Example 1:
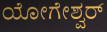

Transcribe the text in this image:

ಯೋಗೇಶ್ವರ್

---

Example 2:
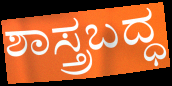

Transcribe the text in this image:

ಶಾಸ್ತ್ರಬದ್ಧ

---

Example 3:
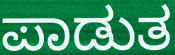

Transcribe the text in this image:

ಪಾಡುತ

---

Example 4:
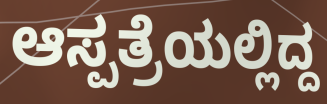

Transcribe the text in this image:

ಆಸ್ಪತ್ರೆಯಲ್ಲಿದ್ದ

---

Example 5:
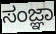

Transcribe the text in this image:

ಸಂಜ್ಞಾ